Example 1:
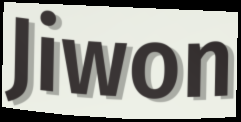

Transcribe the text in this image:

Jiwon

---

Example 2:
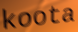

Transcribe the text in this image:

koota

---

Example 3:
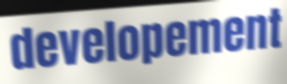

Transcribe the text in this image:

developement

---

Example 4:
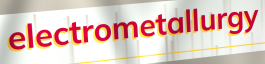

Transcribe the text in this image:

electrometallurgy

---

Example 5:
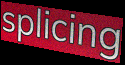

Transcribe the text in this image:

splicing